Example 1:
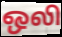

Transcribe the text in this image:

ஒலி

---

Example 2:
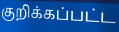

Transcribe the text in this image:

குறிக்கப்பட்ட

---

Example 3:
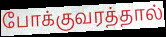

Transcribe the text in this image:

போக்குவரத்தால்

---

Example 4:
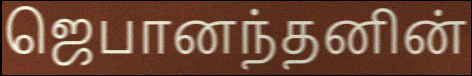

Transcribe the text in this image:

ஜெபானந்தனின்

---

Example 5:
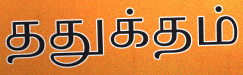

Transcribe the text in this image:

ததுக்தம்